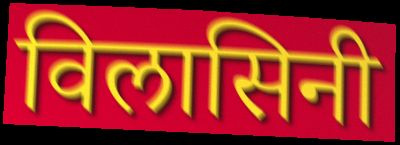
विलासिनी